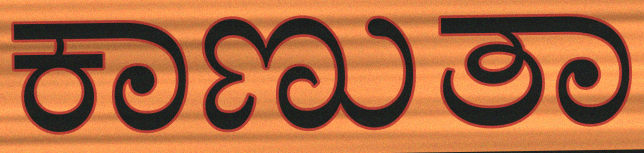
ಕಾಣುತಾ